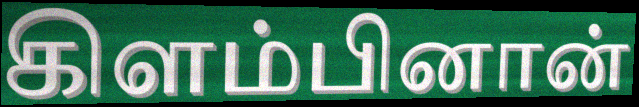
கிளம்பினான்